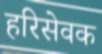
हरिसेवक